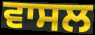
ਵਾਸਲ